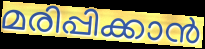
മരിപ്പിക്കാൻ